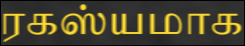
ரகஸ்யமாக